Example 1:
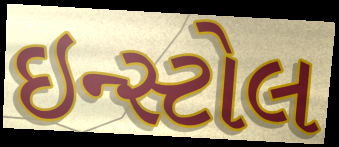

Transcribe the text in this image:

ઇન્સ્ટોલ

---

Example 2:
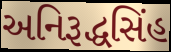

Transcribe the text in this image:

અનિરૂદ્ધસિંહ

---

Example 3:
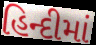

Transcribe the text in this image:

હિન્દીમાં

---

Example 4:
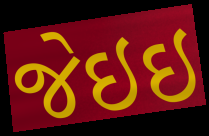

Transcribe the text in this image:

જેઇઇ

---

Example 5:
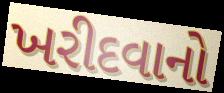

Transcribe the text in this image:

ખરીદવાનો